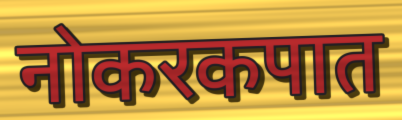
नोकरकपात